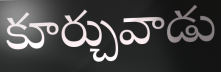
కూర్చువాడు